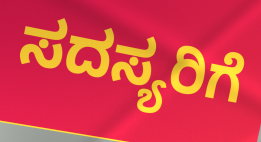
ಸದಸ್ಯರಿಗೆ